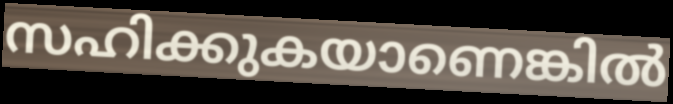
സഹിക്കുകയാണെങ്കിൽ